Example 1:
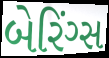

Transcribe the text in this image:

બેરિંગ્સ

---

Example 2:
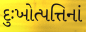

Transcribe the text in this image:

દુઃખોત્પત્તિનાં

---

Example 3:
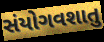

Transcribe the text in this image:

સંયોગવશાતુ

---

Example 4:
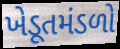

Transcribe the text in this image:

ખેડૂતમંડળો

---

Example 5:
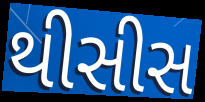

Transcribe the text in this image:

થીસીસ